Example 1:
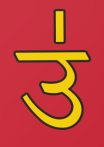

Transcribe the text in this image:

उ॑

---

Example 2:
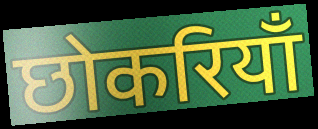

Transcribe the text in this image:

छोकरियाँ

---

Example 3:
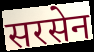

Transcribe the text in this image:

सरसेन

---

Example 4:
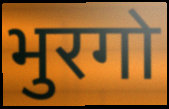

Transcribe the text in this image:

भुरगो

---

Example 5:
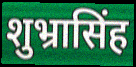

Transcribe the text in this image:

शुभ्रासिंह